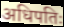
अधिपतिः